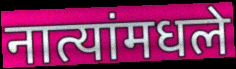
नात्यांमधले